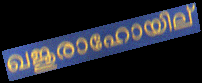
ഖജുരാഹോയില്